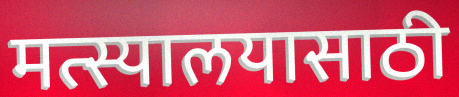
मत्स्यालयासाठी